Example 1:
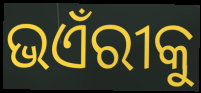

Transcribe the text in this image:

ଭଏଁରୀକୁ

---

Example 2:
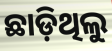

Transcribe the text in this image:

ଛାଡ଼ିଥିଲୁ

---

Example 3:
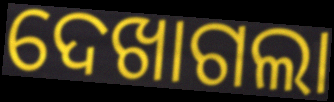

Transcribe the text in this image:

ଦେଖାଗଲା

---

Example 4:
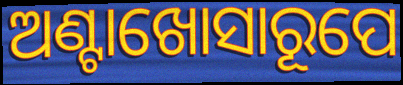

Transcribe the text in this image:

ଅଣ୍ଟାଖୋସାରୂପେ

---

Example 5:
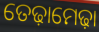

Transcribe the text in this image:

ତେଢ଼ାମେଢ଼ା